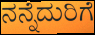
ನನ್ನೆದುರಿಗೆ